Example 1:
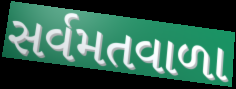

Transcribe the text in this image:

સર્વમતવાળા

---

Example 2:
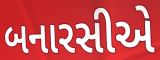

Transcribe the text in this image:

બનારસીએ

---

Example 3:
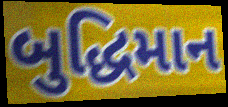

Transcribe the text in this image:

બુદ્ધિમાન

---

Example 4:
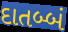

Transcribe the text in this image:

દાતબ્બં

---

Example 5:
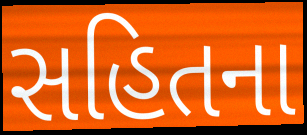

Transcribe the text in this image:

સહિતના